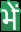
भें